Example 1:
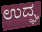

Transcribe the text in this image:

ಉದ್ಘ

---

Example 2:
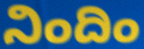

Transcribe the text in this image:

ನಿಂದಿಂ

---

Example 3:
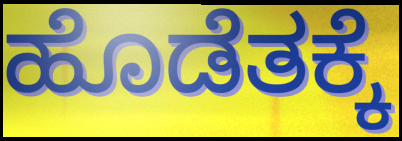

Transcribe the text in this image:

ಹೊಡೆತಕ್ಕೆ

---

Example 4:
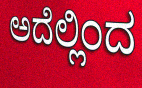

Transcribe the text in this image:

ಅದೆಲ್ಲಿಂದ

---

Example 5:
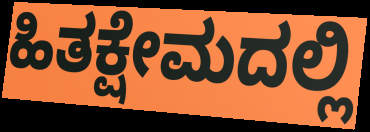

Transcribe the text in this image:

ಹಿತಕ್ಷೇಮದಲ್ಲಿ